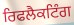
ਰਿਫਲੈਕਟਿੰਗ